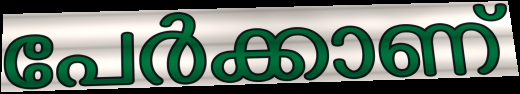
പേർക്കാണ്